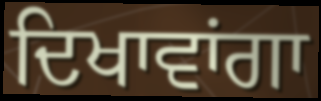
ਦਿਖਾਵਾਂਗਾ